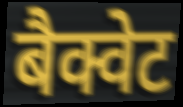
बैक्वेट